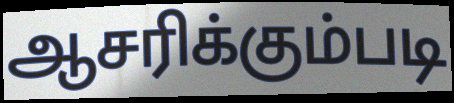
ஆசரிக்கும்படி